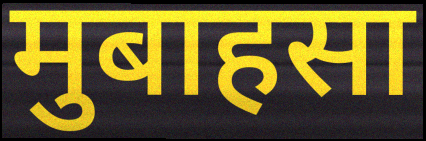
मुबाहसा